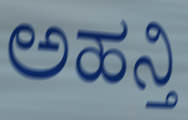
ಅಹನ್ತಿ